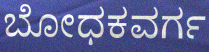
ಬೋಧಕವರ್ಗ